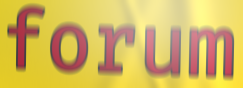
forum